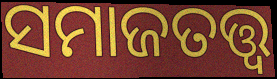
ସମାଜତତ୍ତ୍ବ